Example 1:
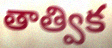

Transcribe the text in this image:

తాత్విక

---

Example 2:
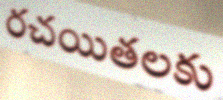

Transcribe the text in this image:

రచయితలకు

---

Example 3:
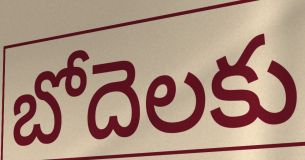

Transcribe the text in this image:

బోదెలకు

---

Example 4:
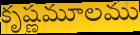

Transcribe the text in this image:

కృష్ణమూలము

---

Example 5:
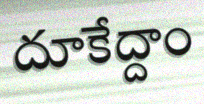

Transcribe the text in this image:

దూకేద్దాం